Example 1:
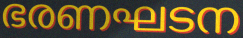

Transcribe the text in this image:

ഭരണഘടന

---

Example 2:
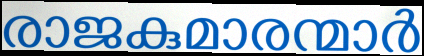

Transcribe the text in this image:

രാജകുമാരന്മാർ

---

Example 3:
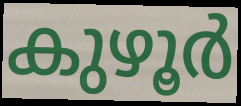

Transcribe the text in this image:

കുഴൂർ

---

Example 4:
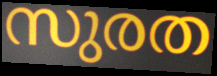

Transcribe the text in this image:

സുരത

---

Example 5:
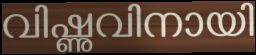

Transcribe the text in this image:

വിഷ്ണുവിനായി